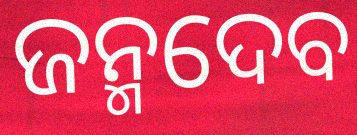
ଜନ୍ମଦେବ